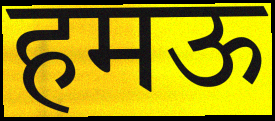
हमऊ